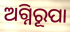
ଅଗ୍ନିରୂପା